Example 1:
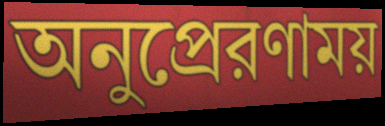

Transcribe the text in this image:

অনুপ্রেরণাময়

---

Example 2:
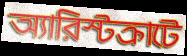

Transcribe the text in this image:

অ্যারিস্টক্রাটে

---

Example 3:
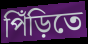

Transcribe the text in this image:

পিঁড়িতে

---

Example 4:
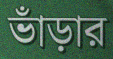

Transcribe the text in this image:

ভাঁড়ার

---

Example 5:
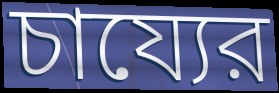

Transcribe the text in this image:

চায্যের